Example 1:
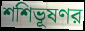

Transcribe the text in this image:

শশিভূষণর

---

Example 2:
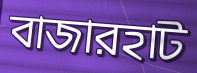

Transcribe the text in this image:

বাজারহাট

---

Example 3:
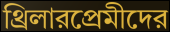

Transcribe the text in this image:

থ্রিলারপ্রেমীদের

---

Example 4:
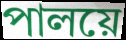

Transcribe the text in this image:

পালয়ে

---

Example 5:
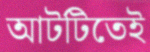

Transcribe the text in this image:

আটটিতেই